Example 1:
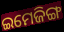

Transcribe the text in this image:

ଇମେଜିଙ୍ଗ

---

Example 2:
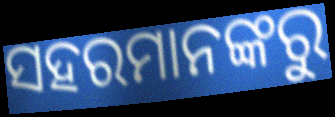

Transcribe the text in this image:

ସହରମାନଙ୍କରୁ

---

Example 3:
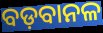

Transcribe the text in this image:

ବଡ଼ବାନଳ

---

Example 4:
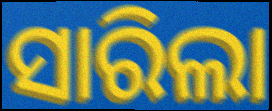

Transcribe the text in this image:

ସାରିଲା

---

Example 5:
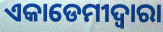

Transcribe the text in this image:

ଏକାଡେମୀଦ୍ୱାରା